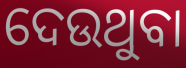
ଦେଉଥୁବା